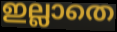
ഇല്ലാതെ